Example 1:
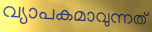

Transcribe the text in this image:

വ്യാപകമാവുന്നത്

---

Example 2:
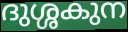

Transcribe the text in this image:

ദുശ്ശകുന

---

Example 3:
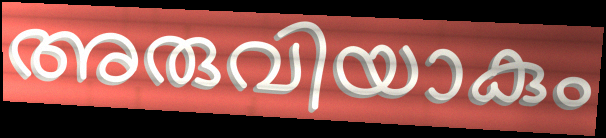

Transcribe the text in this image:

അരുവിയാകും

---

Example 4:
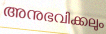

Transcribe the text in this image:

അനുഭവിക്കലും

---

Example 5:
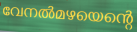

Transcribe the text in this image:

വേനൽമഴയെന്റെ